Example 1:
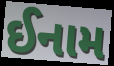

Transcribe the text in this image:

ઈનામ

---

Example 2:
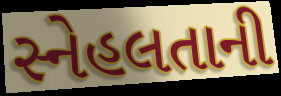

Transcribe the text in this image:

સ્નેહલતાની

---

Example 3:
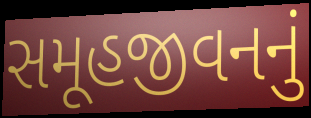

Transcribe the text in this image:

સમૂહજીવનનું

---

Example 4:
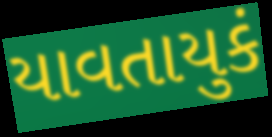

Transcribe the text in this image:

યાવતાયુકં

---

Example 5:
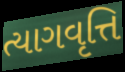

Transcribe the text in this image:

ત્યાગવૃત્તિ